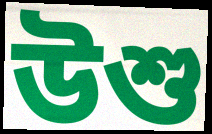
উশু